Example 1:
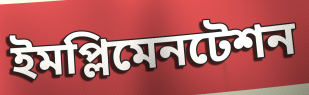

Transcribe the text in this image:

ইমপ্লিমেনটেশন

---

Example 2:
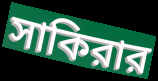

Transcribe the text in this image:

সাকিরার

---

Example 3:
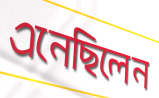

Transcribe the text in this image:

এনেছিলেন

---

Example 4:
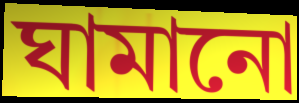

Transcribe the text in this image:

ঘামানো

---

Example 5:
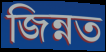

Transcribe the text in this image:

জিন্নত